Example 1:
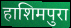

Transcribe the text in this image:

हाशिमपुरा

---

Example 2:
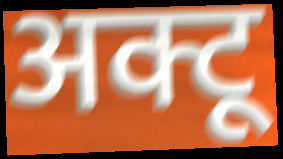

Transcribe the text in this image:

अक्टू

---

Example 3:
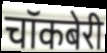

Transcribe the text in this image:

चॉकबेरी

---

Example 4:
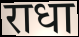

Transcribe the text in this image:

राधा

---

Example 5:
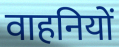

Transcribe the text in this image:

वाहनियों